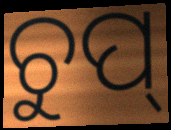
ଚୁପ୍